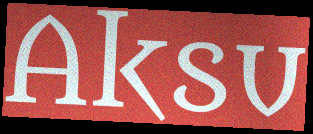
Aksu